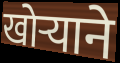
खोऱ्याने